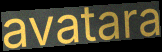
avatara